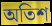
অতিশ